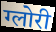
ग्लोरी